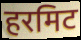
हरमिट